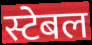
स्टेबल